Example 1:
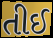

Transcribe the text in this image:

તીઈ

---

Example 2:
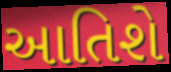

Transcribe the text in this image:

આતિશે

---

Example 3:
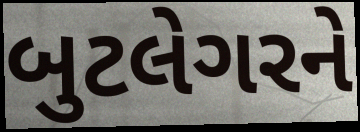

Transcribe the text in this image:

બુટલેગરને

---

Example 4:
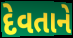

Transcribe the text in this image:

દેવતાને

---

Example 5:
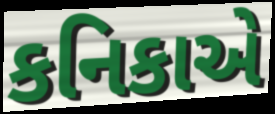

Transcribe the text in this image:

કનિકાએ